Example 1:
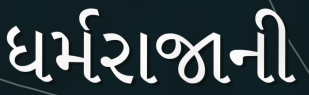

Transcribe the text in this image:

ધર્મરાજાની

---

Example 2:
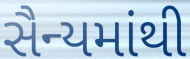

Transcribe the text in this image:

સૈન્યમાંથી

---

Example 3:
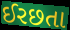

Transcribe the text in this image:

ઈરછતા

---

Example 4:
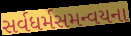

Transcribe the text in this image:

સર્વધર્મસમન્વયના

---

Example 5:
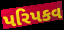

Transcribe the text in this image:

પરિપકવ